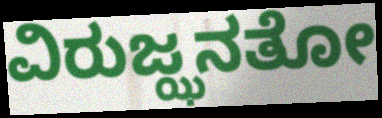
ವಿರುಜ್ಝನತೋ